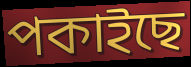
পকাইছে